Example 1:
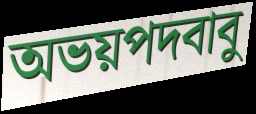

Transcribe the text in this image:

অভয়পদবাবু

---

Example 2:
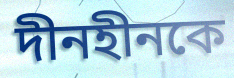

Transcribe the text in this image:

দীনহীনকে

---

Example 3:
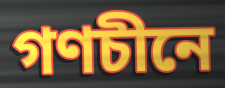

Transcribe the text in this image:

গণচীনে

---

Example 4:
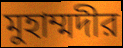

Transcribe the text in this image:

মুহাম্মদীর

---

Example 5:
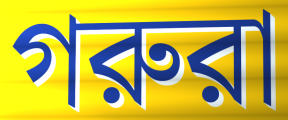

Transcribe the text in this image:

গরুরা